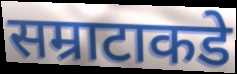
सम्राटाकडे